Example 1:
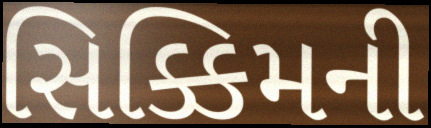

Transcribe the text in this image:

સિક્કિમની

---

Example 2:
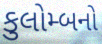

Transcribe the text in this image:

કુલોમ્બનો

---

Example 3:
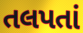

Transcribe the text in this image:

તલપતાં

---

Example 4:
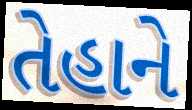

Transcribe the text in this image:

તેહાને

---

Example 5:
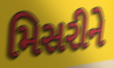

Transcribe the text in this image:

મિસરીને